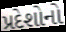
પ્રદેશોનો